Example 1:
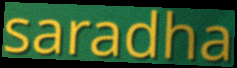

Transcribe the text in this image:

saradha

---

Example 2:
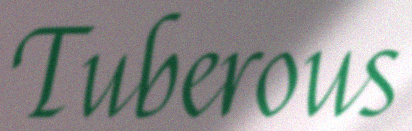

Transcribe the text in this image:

Tuberous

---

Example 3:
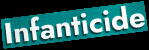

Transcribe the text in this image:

Infanticide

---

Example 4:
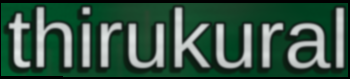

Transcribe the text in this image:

thirukural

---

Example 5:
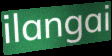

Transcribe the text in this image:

ilangai